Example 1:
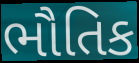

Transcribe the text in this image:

ભૌતિક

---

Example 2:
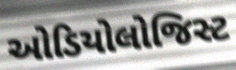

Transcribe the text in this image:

ઓડિયોલોજિસ્ટ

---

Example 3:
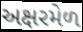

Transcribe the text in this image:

અક્ષરમેળ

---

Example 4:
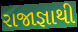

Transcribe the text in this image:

રાજાજ્ઞાથી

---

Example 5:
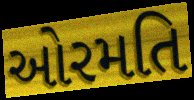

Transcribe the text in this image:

ઓરમતિ